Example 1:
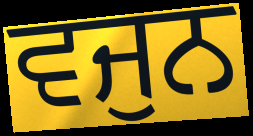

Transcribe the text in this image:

ਵਜੁਨ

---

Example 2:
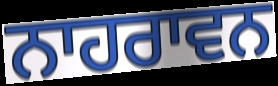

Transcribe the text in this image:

ਨਾਹਰਾਵਨ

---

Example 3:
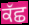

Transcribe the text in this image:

ਕੱਛ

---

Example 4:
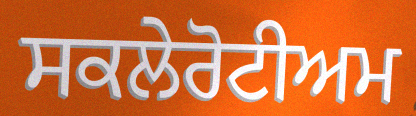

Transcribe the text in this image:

ਸਕਲੇਰੋਟੀਅਮ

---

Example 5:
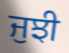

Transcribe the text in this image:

ਜੁਝੀ